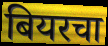
बियरचा